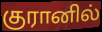
குரானில்